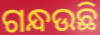
ଗନ୍ଧଉଛି